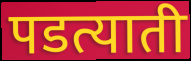
पडत्याती